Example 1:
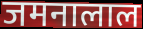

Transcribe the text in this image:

जमनालाल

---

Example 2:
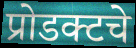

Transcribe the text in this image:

प्रोडक्टचे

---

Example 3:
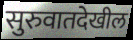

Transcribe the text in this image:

सुरुवातदेखील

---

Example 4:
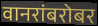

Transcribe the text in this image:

वानरांबरोबर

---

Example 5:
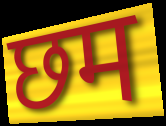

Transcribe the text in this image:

छम